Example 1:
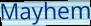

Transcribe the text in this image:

Mayhem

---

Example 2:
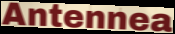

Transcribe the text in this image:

Antennea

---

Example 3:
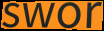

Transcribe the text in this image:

swor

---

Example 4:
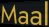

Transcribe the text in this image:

Maal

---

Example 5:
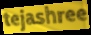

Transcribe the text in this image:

tejashree